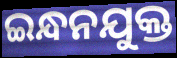
ଇନ୍ଧନଯୁକ୍ତ